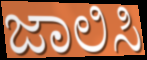
ಜಾಲಿಸಿ